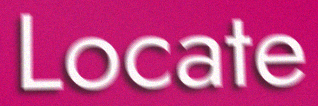
Locate